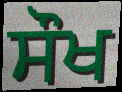
ਸੌਖ